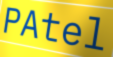
PAtel